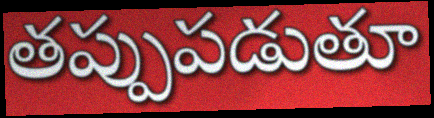
తప్పుపడుతూ